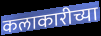
कलाकारीच्या